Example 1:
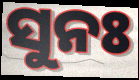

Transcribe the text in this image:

ସୁନଃ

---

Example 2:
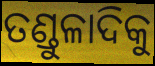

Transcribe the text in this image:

ତଣ୍ଡୁଳାଦିକୁ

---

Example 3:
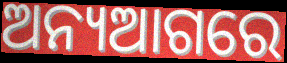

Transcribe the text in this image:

ଅନ୍ୟଆଗରେ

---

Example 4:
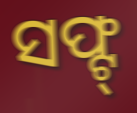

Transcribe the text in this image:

ସଫ୍ଟ୍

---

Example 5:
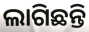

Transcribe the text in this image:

ଲାଗିଛନ୍ତି